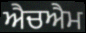
ਐਚਐਮ